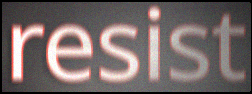
resist